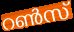
റൺസ്